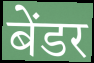
बेंडर